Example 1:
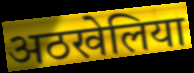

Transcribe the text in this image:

अठखेलिया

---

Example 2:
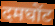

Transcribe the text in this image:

दमघोंट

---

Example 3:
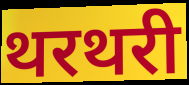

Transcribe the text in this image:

थरथरी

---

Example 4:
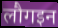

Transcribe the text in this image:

लौगइन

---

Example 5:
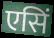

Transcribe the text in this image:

एसिं